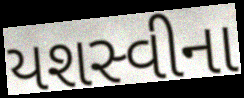
યશસ્વીના